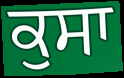
ਕੁਸਾ